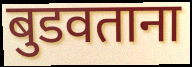
बुडवताना